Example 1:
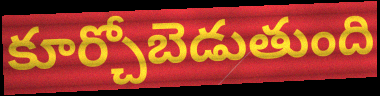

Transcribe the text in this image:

కూర్చోబెడుతుంది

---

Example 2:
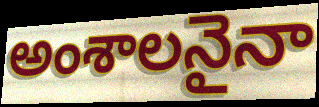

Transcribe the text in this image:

అంశాలనైనా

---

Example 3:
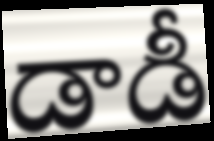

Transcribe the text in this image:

డాడీ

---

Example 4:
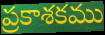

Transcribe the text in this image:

ప్రకాశకము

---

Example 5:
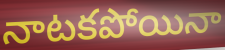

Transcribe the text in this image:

నాటకపోయినా